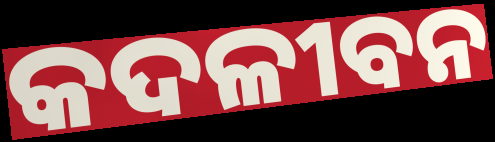
କଦଳୀବନ